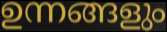
ഉന്നങ്ങളും